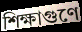
শিক্ষাগুণে